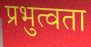
प्रभुत्वता